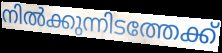
നിൽക്കുന്നിടത്തേക്ക്